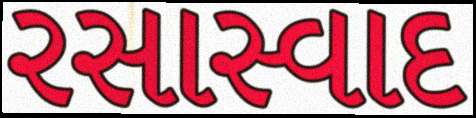
રસાસ્વાદ